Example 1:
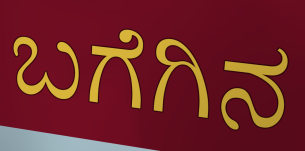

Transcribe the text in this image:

ಬಗೆಗಿನ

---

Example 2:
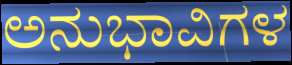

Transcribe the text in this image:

ಅನುಭಾವಿಗಳ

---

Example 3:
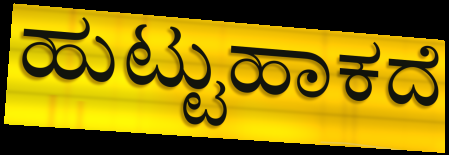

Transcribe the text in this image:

ಹುಟ್ಟುಹಾಕದೆ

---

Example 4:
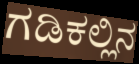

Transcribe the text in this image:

ಗಡಿಕಲ್ಲಿನ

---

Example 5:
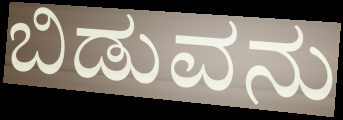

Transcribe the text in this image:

ಬಿಡುವನು